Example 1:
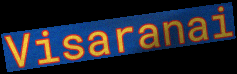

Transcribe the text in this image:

Visaranai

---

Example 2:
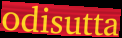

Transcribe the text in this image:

odisutta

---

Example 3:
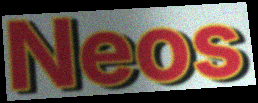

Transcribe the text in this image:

Neos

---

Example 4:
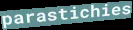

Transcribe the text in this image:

parastichies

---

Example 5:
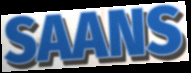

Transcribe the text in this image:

SAANS